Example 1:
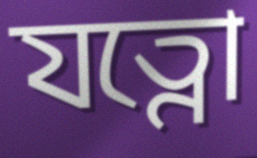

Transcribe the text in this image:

যত্নো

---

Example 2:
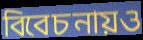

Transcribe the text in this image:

বিবেচনায়ও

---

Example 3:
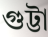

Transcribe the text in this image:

গুট্টা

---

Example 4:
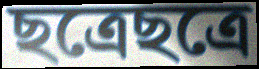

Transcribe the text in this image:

ছত্রেছত্রে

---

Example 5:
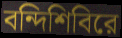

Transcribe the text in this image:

বন্দিশিবিরে